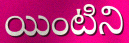
యింటిని